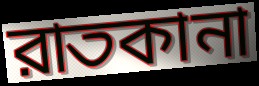
রাতকানা